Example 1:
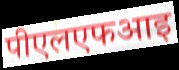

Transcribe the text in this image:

पीएलएफआइ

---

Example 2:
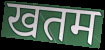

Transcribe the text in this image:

खतम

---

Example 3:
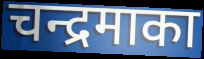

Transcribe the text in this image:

चन्द्रमाका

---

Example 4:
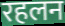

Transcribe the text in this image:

रहलन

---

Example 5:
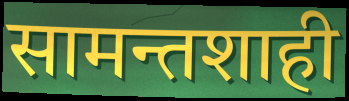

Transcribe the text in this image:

सामन्तशाही